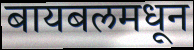
बायबलमधून